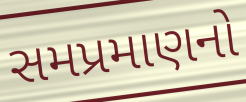
સમપ્રમાણનો